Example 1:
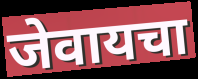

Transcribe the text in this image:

जेवायचा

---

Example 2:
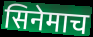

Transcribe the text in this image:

सिनेमाच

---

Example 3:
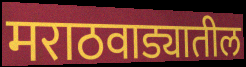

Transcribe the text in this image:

मराठवाड्यातील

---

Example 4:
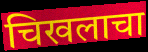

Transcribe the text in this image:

चिखलाचा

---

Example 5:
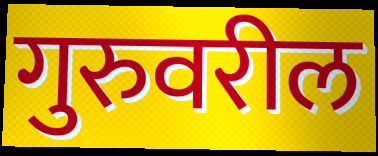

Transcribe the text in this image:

गुरुवरील